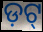
ଡ଼ଟ୍